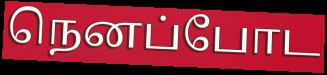
நெனப்போட